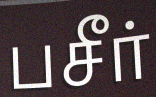
பசீர்